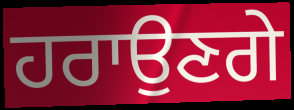
ਹਰਾਉਣਗੇ